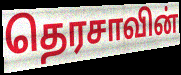
தெரசாவின்